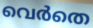
വെർതെ